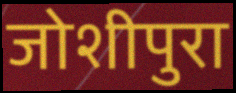
जोशीपुरा